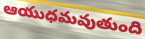
ఆయుధమవుతుంది